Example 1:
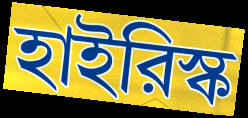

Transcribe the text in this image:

হাইরিস্ক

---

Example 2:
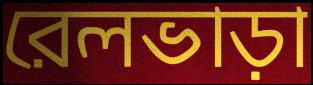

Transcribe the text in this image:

রেলভাড়া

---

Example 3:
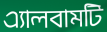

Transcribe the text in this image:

এ্যালবামটি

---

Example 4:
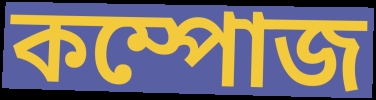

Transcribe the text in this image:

কম্পোজ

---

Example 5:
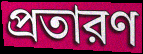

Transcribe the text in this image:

প্রতারণ